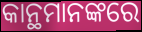
କାନ୍ଥମାନଙ୍କରେ